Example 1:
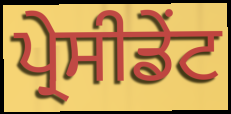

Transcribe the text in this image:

ਪ੍ਰੇਸੀਡੇਂਟ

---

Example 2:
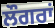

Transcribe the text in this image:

ਲੌਗਰਾਂ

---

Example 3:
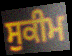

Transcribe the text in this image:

ਸੁਕੀਮ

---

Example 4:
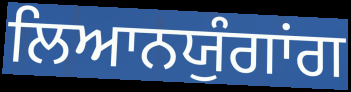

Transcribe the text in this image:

ਲਿਆਨਯੁੰਗਾਂਗ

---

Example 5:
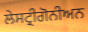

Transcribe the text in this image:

ਲੇਸਟ੍ਰੀਗੋਨੀਅਨ